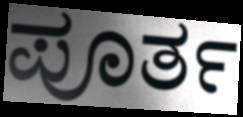
ಪೂರ್ತ